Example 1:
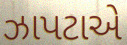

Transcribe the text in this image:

ઝાપટાએ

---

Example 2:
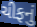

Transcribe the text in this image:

ચીફનું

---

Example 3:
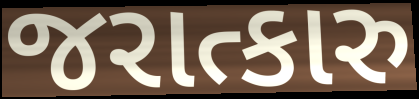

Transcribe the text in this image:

જરાત્કારુ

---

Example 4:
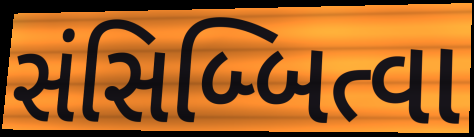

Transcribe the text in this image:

સંસિબ્બિત્વા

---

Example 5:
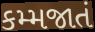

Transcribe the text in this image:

કમ્મજાતં